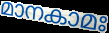
മാനകാമഃ